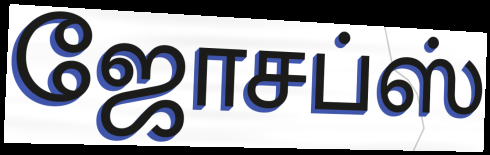
ஜோசப்ஸ்